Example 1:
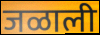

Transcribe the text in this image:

जळाली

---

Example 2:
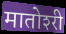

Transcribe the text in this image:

मातोश्री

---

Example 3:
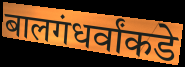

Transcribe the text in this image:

बालगंधर्वांकडे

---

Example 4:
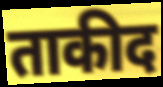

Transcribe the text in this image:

ताकीद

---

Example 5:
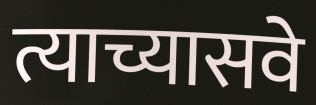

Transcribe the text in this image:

त्याच्यासवे